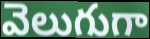
వెలుగుగా